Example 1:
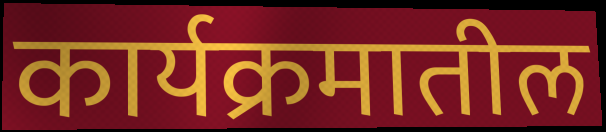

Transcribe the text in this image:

कार्यक्रमातील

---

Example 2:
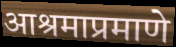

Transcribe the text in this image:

आश्रमाप्रमाणे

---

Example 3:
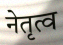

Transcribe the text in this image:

नेतृत्व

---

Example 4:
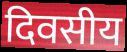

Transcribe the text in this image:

दिवसीय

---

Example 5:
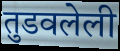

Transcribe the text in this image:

तुडवलेली